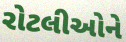
રોટલીઓને